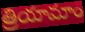
త్రియామాం